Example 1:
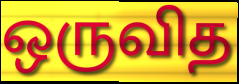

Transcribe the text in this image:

ஒருவித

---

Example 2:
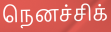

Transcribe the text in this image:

நெனச்சிக்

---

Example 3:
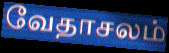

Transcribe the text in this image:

வேதாசலம்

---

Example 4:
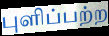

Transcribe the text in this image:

புளிப்பற்ற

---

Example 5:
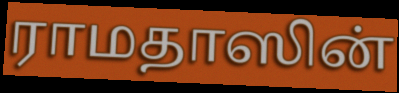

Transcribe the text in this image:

ராமதாஸின்